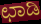
ಛಾಡಿ